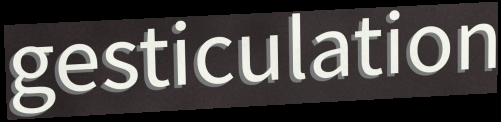
gesticulation